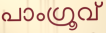
പാംഗ്രൂവ്